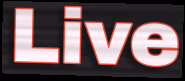
Live